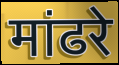
मांढरे